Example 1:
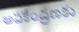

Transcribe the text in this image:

అపకేంద్రణకు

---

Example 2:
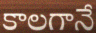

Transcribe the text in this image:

కాలగానే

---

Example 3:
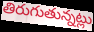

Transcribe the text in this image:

తిరుగుతున్నట్లు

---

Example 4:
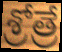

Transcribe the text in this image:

శ్రోత్రే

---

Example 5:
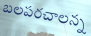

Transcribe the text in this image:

బలపరచాలన్న